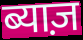
ब्याज़